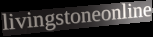
livingstoneonline